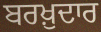
ਬਰਖ਼ੁਦਾਰ